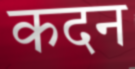
कदन